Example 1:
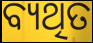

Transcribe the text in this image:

ବ୍ୟଥିତ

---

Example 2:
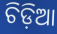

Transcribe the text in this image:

ଚିଡ଼ିଆ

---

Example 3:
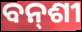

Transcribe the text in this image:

ବନ୍‍ଶୀ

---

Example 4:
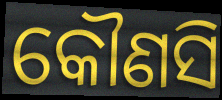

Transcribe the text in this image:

କୌଣସି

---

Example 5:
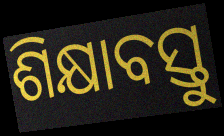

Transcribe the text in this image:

ଶିକ୍ଷାବସ୍ତୁ